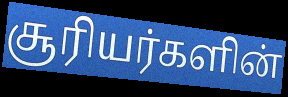
சூரியர்களின்